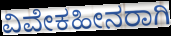
ವಿವೇಕಹೀನರಾಗಿ